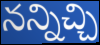
నన్నిచ్చి